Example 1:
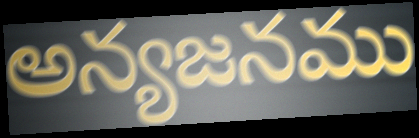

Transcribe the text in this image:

అన్యజనము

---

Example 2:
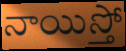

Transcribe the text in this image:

నాయిస్తో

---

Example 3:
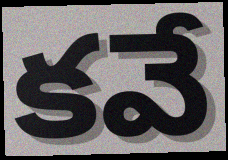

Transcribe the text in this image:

కవే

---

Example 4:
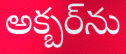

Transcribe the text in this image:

అక్బర్‌ను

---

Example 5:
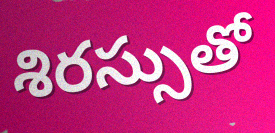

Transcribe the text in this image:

శిరస్సుతో